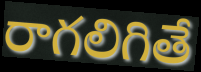
రాగలిగితే